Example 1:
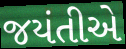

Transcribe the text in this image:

જયંતીએ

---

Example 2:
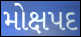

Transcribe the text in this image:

મોક્ષપદ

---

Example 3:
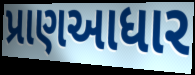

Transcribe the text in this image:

પ્રાણઆધાર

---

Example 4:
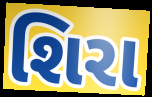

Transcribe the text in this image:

શિરા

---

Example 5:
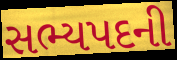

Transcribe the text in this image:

સભ્યપદની